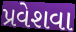
પ્રવેશવા